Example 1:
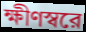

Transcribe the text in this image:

ক্ষীণস্বরে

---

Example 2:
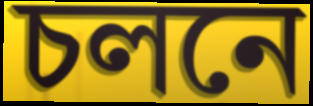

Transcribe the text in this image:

চলনে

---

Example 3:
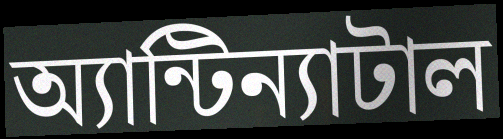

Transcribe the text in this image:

অ্যান্টিন্যাটাল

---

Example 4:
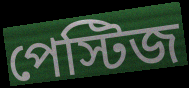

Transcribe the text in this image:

পেস্টিজ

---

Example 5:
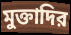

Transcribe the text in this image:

মুক্তাদির